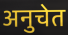
अनुचेत